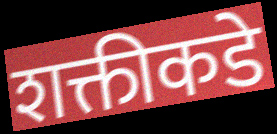
शक्तीकडे